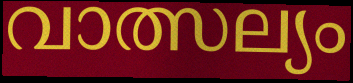
വാത്സല്യം